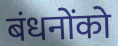
बंधनोंको